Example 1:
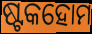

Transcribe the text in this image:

ଷ୍ଟକହୋମ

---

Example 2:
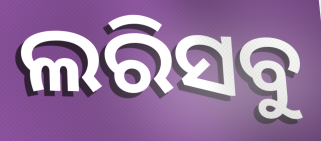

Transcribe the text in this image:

ଲରିସବୁ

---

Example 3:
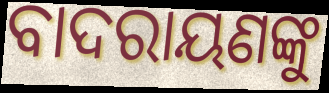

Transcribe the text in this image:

ବାଦରାୟଣଙ୍କୁ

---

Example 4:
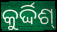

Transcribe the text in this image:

କୁର୍ଦ୍ଦିଶ୍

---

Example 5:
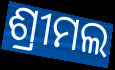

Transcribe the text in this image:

ଶ୍ରୀମଲ